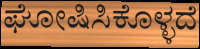
ಘೋಷಿಸಿಕೊಳ್ಳದೆ